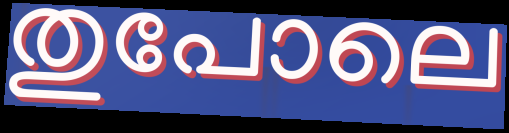
തുപോലെ